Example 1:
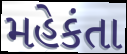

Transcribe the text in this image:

મહેકંતા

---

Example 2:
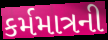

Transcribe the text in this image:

કર્મમાત્રની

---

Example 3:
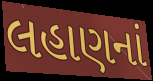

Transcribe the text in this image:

લહાણનાં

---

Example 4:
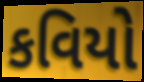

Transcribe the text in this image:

કવિયો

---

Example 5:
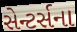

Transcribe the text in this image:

સેન્ટર્સના